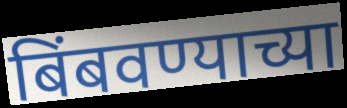
बिंबवण्याच्या